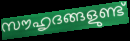
സൗഹൃദങ്ങളുണ്ട്